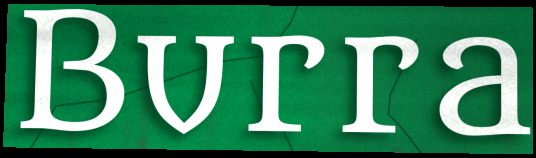
Burra